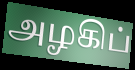
அழகிப்